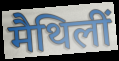
मैथिलीं